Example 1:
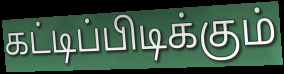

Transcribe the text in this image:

கட்டிப்பிடிக்கும்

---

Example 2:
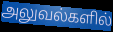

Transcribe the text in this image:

அலுவல்களில்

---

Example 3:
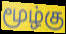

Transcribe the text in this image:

மூழ்கு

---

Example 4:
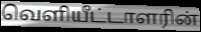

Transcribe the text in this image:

வெளியீட்டாளரின்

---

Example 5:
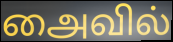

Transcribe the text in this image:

அைவில்